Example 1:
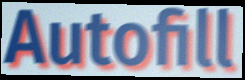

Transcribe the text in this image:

Autofill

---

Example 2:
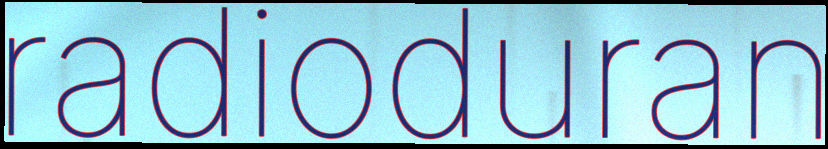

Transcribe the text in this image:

radioduran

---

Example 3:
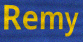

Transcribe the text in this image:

Remy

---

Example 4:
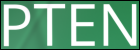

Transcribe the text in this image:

PTEN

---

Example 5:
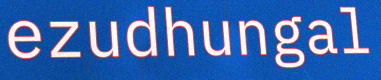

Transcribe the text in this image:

ezudhungal